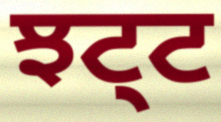
ਝਟ੍ਟ